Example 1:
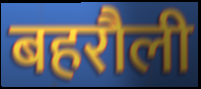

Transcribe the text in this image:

बहरौली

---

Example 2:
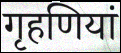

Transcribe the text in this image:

गृहणियां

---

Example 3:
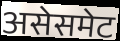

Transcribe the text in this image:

असेसमेट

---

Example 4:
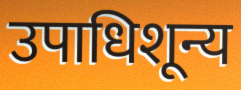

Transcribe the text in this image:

उपाधिशून्य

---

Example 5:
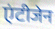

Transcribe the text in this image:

एंटीजेन